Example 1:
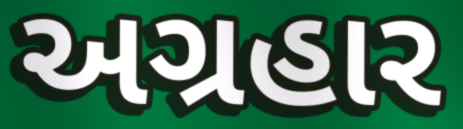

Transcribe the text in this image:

અગ્રહાર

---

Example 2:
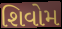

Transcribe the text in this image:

શિવોમ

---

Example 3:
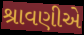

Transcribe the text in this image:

શ્રાવણીએ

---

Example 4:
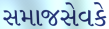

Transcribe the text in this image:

સમાજસેવકે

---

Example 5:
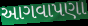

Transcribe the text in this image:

આગવાપણા